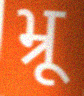
भ्रू